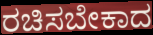
ರಚಿಸಬೇಕಾದ